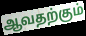
ஆவதற்கும்